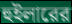
হুইলারের